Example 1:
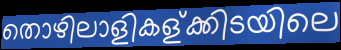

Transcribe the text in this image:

തൊഴിലാളികള്ക്കിടയിലെ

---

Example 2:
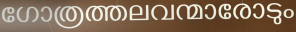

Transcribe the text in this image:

ഗോത്രത്തലവന്മാരോടും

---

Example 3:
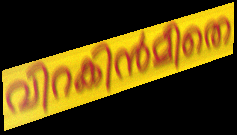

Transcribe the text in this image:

വിറകിൻമീതെ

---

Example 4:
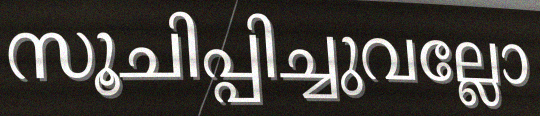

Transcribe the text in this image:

സൂചിപ്പിച്ചുവല്ലോ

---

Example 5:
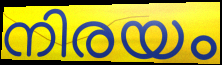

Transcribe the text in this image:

നിരയം